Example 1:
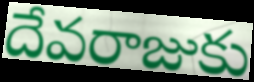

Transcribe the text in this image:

దేవరాజుకు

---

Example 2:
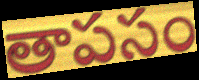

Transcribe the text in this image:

తాపసం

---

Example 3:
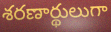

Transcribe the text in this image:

శరణార్థులుగా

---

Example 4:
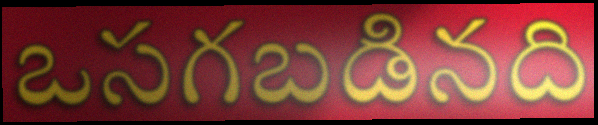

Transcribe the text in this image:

ఒసగబడినది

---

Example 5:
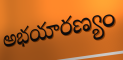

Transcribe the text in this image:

అభయారణ్యం